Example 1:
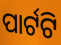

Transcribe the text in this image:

ପାର୍ଟଟି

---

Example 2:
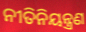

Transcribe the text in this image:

ନୀତିନିୟନ୍ତ୍ରଣ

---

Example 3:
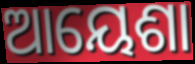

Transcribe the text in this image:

ଆୟେଶା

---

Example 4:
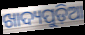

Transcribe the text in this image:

ଖାଦ୍ୟପୁଡ଼ିଆ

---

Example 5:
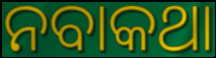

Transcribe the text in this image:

ନବାକଥା